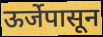
ऊर्जेपासून